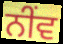
ਨੀਂਵ